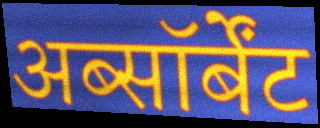
अब्सॉर्बेंट